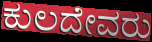
ಕುಲದೇವರು